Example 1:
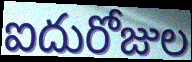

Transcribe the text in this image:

ఐదురోజుల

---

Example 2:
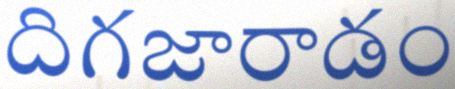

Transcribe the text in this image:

దిగజారాడం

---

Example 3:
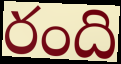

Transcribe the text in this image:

రంది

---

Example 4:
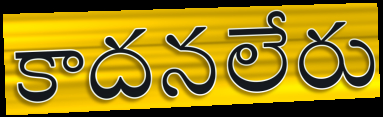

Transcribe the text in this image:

కాదనలేరు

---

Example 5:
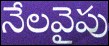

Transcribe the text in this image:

నేలవైపు